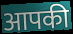
आपकी